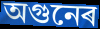
অগুনেৰ